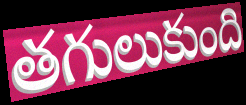
తగులుకుంది